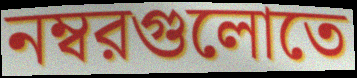
নম্বরগুলোতে